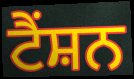
ਟੈਂਸ਼ਨ